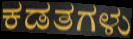
ಕಡತಗಳು